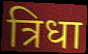
त्रिधा